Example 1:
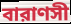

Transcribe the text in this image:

বারাণসী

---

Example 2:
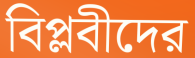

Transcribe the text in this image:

বিপ্লবীদের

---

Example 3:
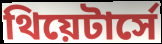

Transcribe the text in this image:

থিয়েটার্সে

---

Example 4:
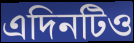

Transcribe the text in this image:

এদিনটিও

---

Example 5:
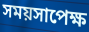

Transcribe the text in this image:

সময়সাপেক্ষ